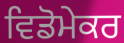
ਵਿਡੋਮੇਕਰ